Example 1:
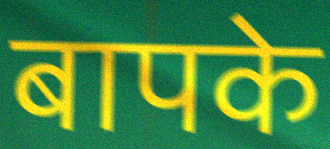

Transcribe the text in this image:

बापके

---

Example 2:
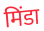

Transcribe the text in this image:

मिंडा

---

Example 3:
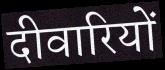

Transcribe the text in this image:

दीवारियों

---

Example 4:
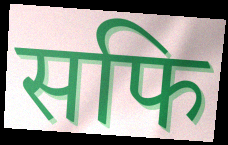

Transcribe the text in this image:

सफि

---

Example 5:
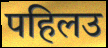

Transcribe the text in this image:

पहिलउ